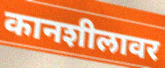
कानशीलावर